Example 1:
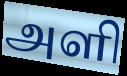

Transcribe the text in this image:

அளி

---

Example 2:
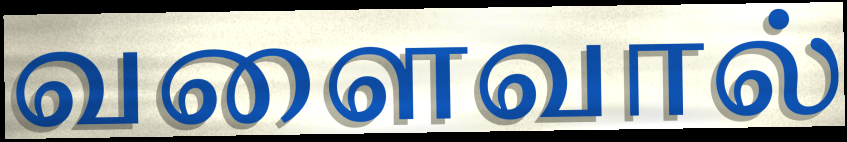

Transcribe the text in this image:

வளைவால்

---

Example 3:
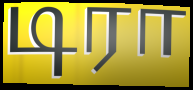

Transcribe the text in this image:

டிரா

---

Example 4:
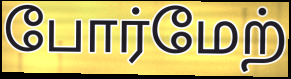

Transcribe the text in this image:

போர்மேற்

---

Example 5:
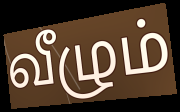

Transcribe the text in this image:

வீழும்